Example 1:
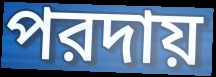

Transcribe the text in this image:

পরদায়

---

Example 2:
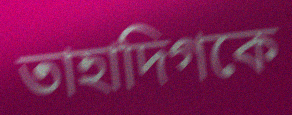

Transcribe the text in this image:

তাহাদিগকে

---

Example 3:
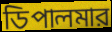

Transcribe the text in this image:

ডিপালমার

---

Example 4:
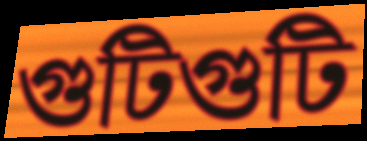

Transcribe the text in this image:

গুটিগুটি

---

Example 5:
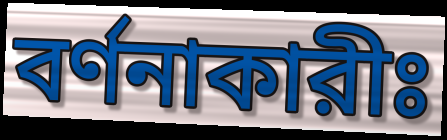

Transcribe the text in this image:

বর্ণনাকারীঃ